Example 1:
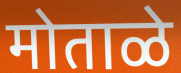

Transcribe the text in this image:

मोताळे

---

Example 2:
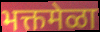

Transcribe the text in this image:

भक्तमेळा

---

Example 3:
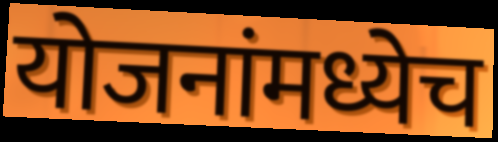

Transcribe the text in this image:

योजनांमध्येच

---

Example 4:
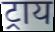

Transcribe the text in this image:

ट्राय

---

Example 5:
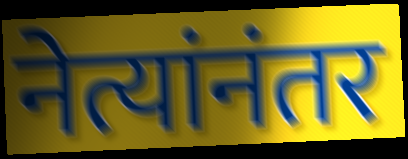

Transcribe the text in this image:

नेत्यांनंतर